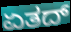
ಏತದ್